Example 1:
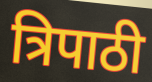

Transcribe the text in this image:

त्रिपाठी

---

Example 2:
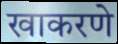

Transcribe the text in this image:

खाकरणे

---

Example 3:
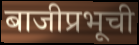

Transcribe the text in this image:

बाजीप्रभूची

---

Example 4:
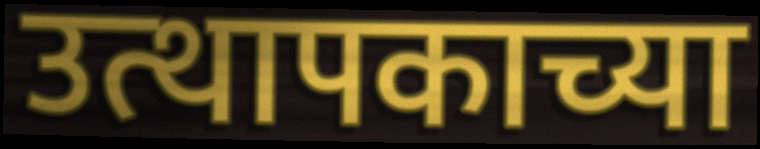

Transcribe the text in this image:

उत्थापकाच्या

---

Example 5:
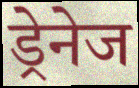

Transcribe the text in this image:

ड्रेनेज